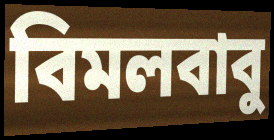
বিমলবাবু